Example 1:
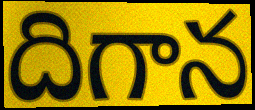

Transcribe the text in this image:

దిగాన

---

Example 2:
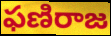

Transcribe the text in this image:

ఫణిరాజ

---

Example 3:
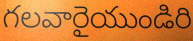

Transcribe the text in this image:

గలవారైయుండిరి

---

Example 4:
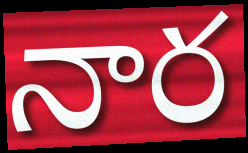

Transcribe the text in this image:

నార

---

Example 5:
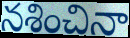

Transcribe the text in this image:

నశించినా